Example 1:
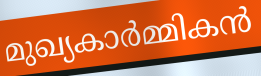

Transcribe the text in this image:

മുഖ്യകാർമ്മികൻ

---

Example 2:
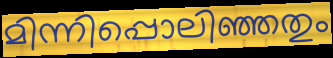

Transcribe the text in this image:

മിന്നിപ്പൊലിഞ്ഞതും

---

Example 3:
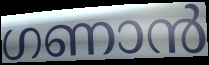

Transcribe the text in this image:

ഗണാൻ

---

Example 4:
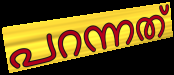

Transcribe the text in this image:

പറന്നത്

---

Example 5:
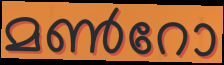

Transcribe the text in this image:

മൺറോ